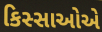
કિસ્સાઓએ